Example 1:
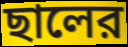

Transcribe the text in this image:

ছালের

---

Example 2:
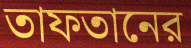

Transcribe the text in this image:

তাফতানের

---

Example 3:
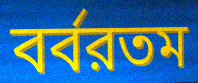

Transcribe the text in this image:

বর্বরতম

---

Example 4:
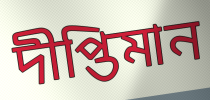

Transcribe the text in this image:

দীপ্তিমান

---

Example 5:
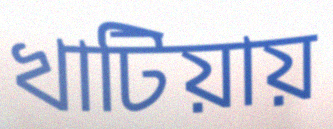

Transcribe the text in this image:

খাটিয়ায়